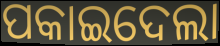
ପକାଇଦେଲା